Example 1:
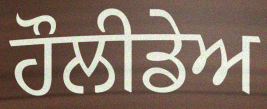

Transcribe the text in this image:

ਹੌਲੀਡੇਅ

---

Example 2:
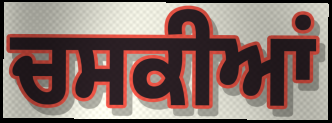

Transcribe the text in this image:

ਚਸਕੀਆਂ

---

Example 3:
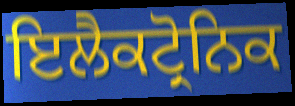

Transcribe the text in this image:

ਇਲੈਕਟ੍ਰੋਨਿਕ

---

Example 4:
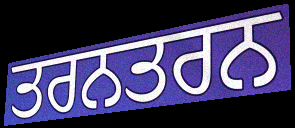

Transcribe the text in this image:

ਤਰਨਤਰਨ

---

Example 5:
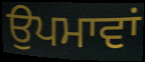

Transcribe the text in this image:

ਉਪਮਾਵਾਂ